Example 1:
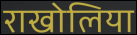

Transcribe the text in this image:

राखोलिया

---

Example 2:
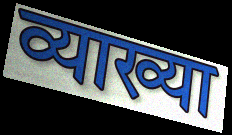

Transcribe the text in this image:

व्याख्‍या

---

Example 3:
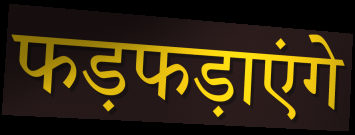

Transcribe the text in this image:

फड़फड़ाएंगे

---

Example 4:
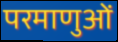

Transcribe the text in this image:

परमाणुओं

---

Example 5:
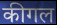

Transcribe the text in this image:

कीगल